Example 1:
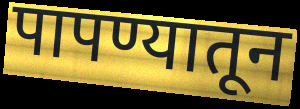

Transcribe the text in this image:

पापण्यातून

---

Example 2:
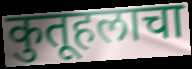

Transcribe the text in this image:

कुतूहलाचा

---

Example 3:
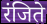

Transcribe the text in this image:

रंजिते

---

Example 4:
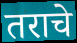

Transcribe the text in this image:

तराचे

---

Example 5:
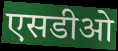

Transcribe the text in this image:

एसडीओ